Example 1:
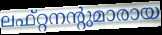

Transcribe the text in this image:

ലഫ്റ്റനന്റുമാരായ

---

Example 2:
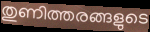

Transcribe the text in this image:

തുണിത്തരങ്ങളുടെ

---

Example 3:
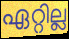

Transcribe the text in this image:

ഏറ്റില്ല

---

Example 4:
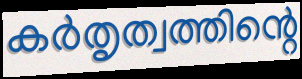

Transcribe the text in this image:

കർതൃത്വത്തിന്റെ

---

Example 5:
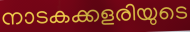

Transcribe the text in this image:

നാടകക്കളരിയുടെ